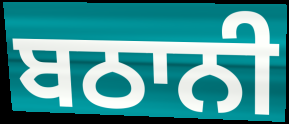
ਬਠਾਨੀ